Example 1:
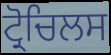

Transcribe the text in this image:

ਟ੍ਰੋਚਿਲਸ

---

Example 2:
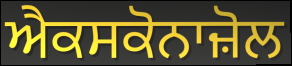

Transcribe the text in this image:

ਐਕਸਕੋਨਾਜ਼ੋਲ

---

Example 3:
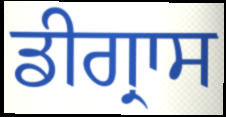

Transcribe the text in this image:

ਡੀਗ੍ਰਾਸ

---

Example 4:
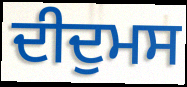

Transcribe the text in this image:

ਦੀਦੁਮਸ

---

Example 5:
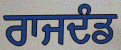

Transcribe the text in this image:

ਰਾਜਦੰਡ